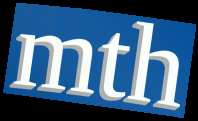
mth